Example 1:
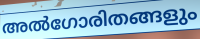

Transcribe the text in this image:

അൽഗോരിതങ്ങളും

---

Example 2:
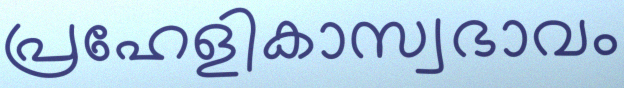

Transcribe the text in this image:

പ്രഹേളികാസ്വഭാവം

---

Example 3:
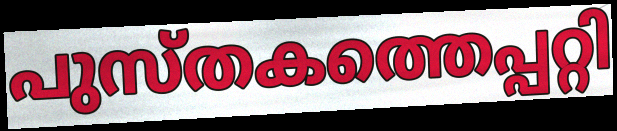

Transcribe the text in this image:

പുസ്തകത്തെപ്പറ്റി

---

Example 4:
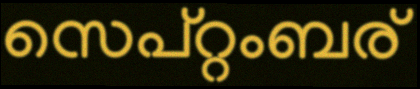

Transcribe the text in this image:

സെപ്റ്റംബര്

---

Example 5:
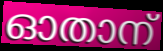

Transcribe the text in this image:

ഓതാന്